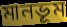
মানভূম